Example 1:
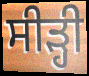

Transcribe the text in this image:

ਸੀੜ੍ਹੀ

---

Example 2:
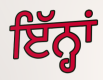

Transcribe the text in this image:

ਇੱਨ੍ਹਾਂ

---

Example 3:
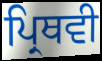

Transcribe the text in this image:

ਪ੍ਰਿਥਵੀ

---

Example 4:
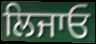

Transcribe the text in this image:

ਲਿਜਾਓ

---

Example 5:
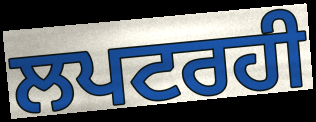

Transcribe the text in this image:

ਲਪਟਰਹੀ